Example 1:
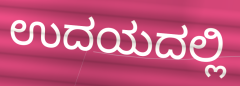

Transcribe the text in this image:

ಉದಯದಲ್ಲಿ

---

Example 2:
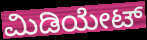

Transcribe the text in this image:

ಮಿಡಿಯೇಟ್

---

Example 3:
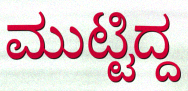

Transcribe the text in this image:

ಮುಟ್ಟಿದ್ದ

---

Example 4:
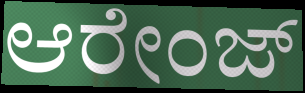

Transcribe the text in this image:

ಆರೇಂಜ್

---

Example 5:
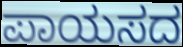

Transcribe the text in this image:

ಪಾಯಸದ